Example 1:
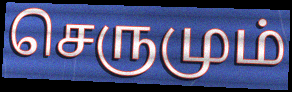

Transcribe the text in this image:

செருமும்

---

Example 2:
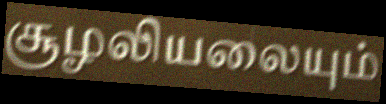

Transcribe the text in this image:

சூழலியலையும்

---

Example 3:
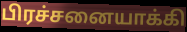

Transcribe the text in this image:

பிரச்சனையாக்கி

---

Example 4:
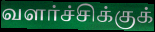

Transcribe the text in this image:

வளர்ச்சிக்குக்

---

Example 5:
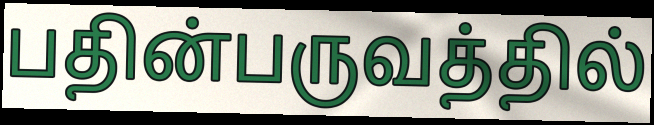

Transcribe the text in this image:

பதின்பருவத்தில்